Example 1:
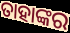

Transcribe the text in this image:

ତାହାଙ୍କର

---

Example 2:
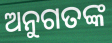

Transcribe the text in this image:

ଅନୁଗତଙ୍କ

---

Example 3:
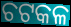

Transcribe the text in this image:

ଚଟକଳ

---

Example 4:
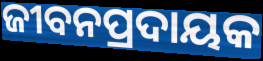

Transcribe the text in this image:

ଜୀବନପ୍ରଦାୟକ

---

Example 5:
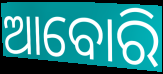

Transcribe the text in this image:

ଆବୋରି